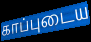
காப்புடைய